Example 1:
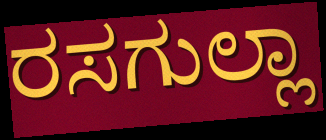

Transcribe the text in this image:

ರಸಗುಲ್ಲಾ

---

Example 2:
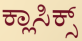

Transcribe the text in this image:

ಕ್ಲಾಸಿಕ್ಸ್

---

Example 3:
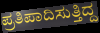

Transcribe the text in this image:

ಪ್ರತಿಪಾದಿಸುತ್ತಿದ್ದ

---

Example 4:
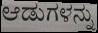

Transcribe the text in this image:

ಆಡುಗಳನ್ನು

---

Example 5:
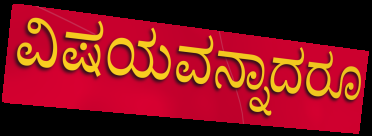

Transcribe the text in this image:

ವಿಷಯವನ್ನಾದರೂ